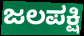
ಜಲಪಕ್ಷಿ